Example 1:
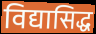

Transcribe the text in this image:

विद्यासिद्ध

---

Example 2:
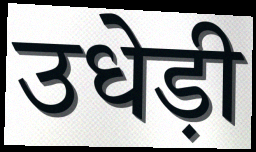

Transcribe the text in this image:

उधेड़ी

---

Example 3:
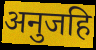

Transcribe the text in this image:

अनुजहि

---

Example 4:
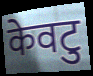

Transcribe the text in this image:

केवटु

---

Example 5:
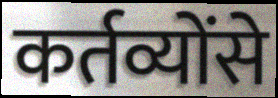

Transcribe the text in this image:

कर्तव्योंसे